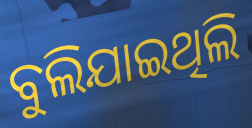
ବୁଲିଯାଇଥିଲି